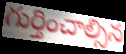
గుర్తించాల్సిన